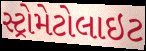
સ્ટ્રોમેટોલાઇટ